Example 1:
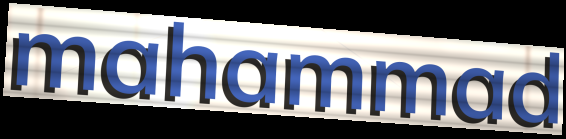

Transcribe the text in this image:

mahammad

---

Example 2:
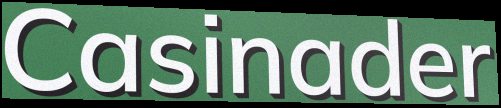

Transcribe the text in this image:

Casinader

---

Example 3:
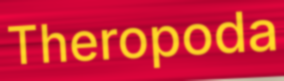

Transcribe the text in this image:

Theropoda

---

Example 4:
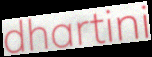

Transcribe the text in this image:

dhartini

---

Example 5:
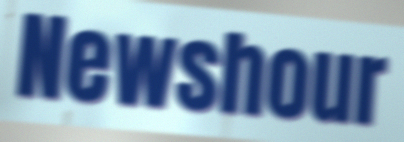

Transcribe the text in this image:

Newshour